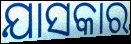
ଯାସକାର